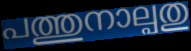
പത്തുനാല്പതു